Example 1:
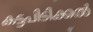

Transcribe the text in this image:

കട്ടപിടിക്കൽ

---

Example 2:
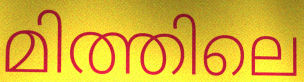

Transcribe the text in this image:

മിത്തിലെ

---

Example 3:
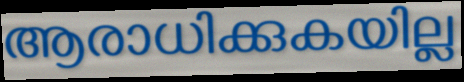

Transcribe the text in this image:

ആരാധിക്കുകയില്ല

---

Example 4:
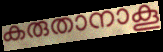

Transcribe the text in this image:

കരുതാനാകൂ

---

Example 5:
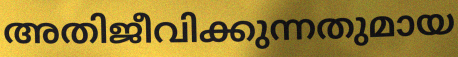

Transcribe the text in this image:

അതിജീവിക്കുന്നതുമായ